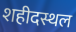
शहीदस्थल